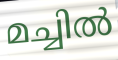
മച്ചിൽ